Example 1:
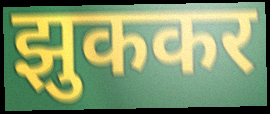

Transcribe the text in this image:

झुककर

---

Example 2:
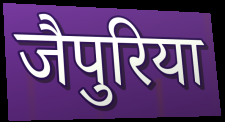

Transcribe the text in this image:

जैपुरिया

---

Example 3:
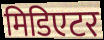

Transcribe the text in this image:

मिडिएटर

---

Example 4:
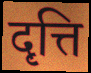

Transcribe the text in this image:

दृत्ति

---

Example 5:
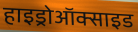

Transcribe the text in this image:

हाइड्रोऑक्साइड